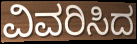
ವಿವರಿಸಿದ